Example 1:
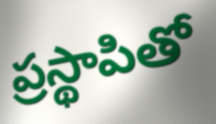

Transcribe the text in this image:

ప్రస్థాపితో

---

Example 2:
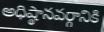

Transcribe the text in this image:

అధిష్ఠానవర్గానికి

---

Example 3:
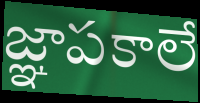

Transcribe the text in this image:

జ్ఞాపకాలే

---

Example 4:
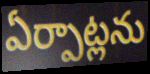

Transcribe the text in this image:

ఏర్పాట్లను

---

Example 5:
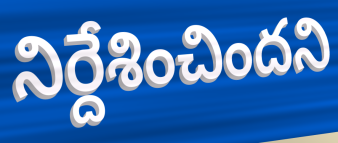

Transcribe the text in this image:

నిర్దేశించిందని